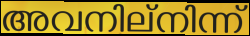
അവനില്നിന്ന്